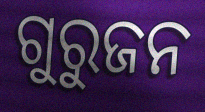
ଗୁରୁଜନ